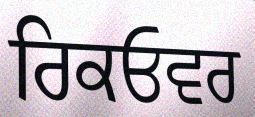
ਰਿਕਓਵਰ